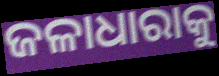
ଜଳାଧାରାକୁ